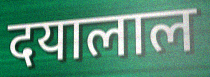
दयालाल